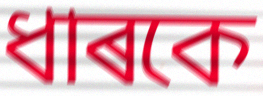
ধাৰকে